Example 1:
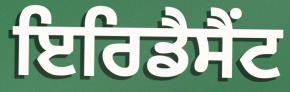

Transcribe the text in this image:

ਇਰਿਡੈਸੈਂਟ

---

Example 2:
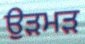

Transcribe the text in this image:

ਉੜਮੜ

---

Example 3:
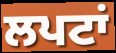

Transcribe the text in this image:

ਲਪਟਾਂ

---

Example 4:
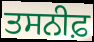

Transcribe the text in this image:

ਤਸਨੀਫ਼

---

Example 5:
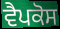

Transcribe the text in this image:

ਵੈਪਕੋਸ